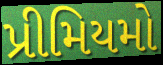
પ્રીમિયમો